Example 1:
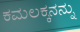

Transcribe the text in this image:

ಕಮಲಕ್ಕನನ್ನು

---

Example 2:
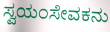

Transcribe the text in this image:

ಸ್ವಯಂಸೇವಕನು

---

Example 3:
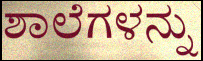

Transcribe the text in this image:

ಶಾಲೆಗಳನ್ನು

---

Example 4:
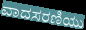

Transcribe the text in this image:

ವಾದಸರಣಿಯು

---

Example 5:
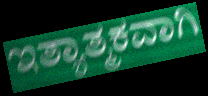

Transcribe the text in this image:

ಇತ್ಯಾತ್ಮಕವಾಗಿ